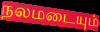
நலமடையும்